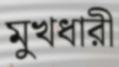
মুখধারী